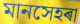
মানসেহৰা